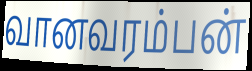
வானவரம்பன்